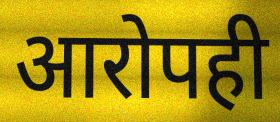
आरोपही